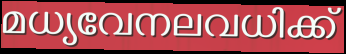
മധ്യവേനലവധിക്ക്